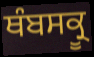
ਥੰਬਸਕ੍ਰੂ